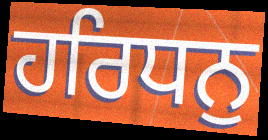
ਹਰਿਧਨੁ